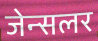
जेन्सलर